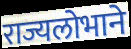
राज्यलोभाने